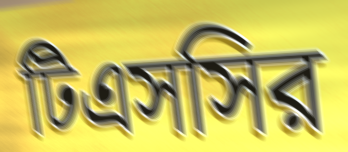
টিএসসির